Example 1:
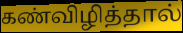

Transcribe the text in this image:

கண்விழித்தால்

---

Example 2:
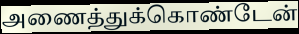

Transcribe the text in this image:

அணைத்துக்கொண்டேன்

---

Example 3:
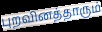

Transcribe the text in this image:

புறவினத்தாரும்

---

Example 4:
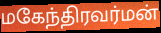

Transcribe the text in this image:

மகேந்திரவர்மன்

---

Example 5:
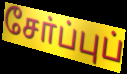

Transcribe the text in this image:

சேர்ப்புப்